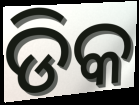
ଡିକ